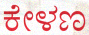
ಕೇಳಣ